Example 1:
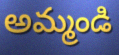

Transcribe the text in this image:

అమ్మండి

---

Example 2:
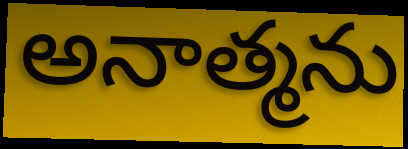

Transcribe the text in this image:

అనాత్మను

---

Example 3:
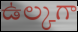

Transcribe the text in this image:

ఉల్కగా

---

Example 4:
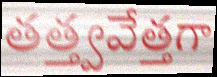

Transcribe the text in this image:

తత్త్వవేత్తగా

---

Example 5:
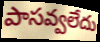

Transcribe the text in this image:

పాసవ్వలేదు